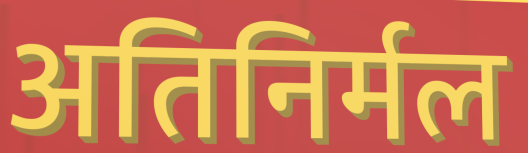
अतिनिर्मल